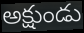
అక్షుండు